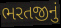
ભરતજીનું